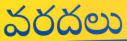
వరదలు